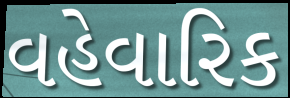
વહેવારિક